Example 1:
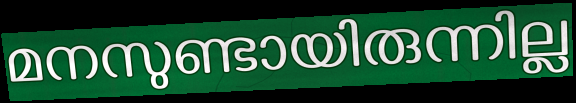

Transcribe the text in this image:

മനസുണ്ടായിരുന്നില്ല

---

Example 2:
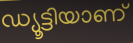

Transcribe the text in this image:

ഡ്യൂട്ടിയാണ്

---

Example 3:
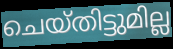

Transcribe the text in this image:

ചെയ്തിട്ടുമില്ല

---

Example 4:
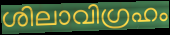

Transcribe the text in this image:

ശിലാവിഗ്രഹം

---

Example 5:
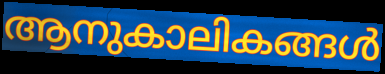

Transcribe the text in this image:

ആനുകാലികങ്ങൾ